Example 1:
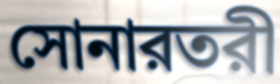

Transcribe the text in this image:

সোনারতরী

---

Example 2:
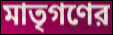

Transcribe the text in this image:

মাতৃগণের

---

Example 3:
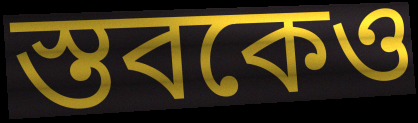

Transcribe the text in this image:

স্তবকেও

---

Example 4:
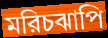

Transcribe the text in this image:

মরিচঝাপি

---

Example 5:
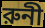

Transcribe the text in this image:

রুনী